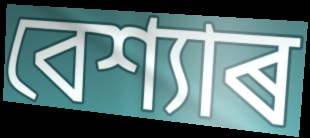
বেশ্যাৰ